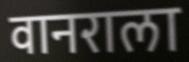
वानराला